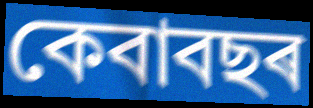
কেবাবছৰ